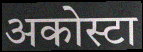
अकोस्टा